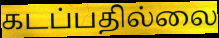
கடப்பதில்லை